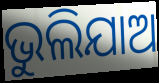
ଭୁଲିଯାଅ